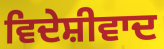
ਵਿਦੇਸ਼ੀਵਾਦ